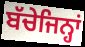
ਬੱਚੇਜਿਨ੍ਹਾਂ